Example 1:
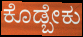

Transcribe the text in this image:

ಕೊಡ್ಬೇಕು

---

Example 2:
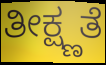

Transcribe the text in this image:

ತೀಕ್ಷ್ಣತೆ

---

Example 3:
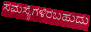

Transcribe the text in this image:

ಸಮಸ್ಯೆಗಳಿರಬಹುದು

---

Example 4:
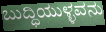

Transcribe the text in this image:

ಬುದ್ಧಿಯುಳ್ಳವನು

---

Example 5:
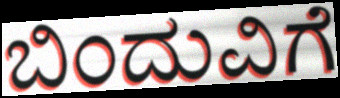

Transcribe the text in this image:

ಬಿಂದುವಿಗೆ